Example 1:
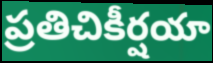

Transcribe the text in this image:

ప్రతిచికీర్షయా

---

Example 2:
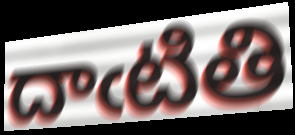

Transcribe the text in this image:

దాఁటితి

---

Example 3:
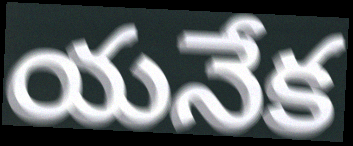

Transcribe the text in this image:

యనేక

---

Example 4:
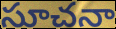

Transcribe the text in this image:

సూచనా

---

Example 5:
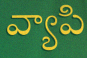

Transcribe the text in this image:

వ్యాపి